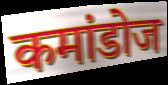
कमांडोज